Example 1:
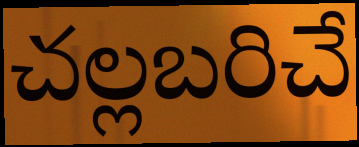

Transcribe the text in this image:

చల్లబరిచే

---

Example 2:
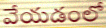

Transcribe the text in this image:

వేయడంలో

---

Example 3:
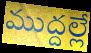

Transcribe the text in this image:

ముద్దల్లే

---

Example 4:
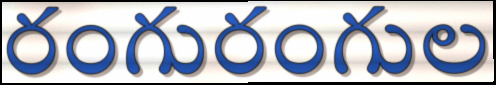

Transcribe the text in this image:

రంగురంగుల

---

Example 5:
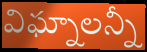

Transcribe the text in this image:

విఘ్నాలన్నీ